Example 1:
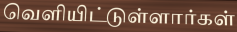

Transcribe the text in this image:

வெளியிட்டுள்ளார்கள்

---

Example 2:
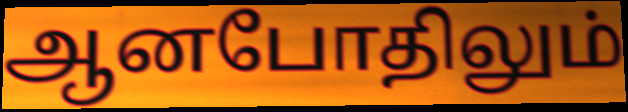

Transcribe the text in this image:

ஆனபோதிலும்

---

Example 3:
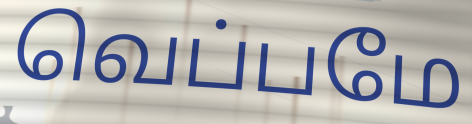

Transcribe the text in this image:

வெப்பமே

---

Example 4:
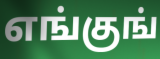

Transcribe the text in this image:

எங்குங்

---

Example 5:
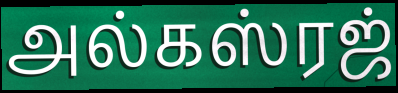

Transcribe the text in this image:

அல்கஸ்ரஜ்